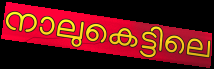
നാലുകെട്ടിലെ